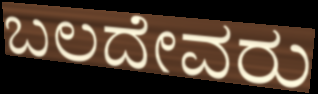
ಬಲದೇವರು